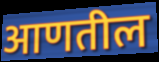
आणतील